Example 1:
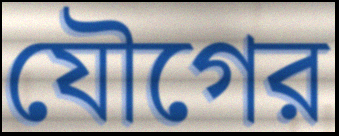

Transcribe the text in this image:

যৌগের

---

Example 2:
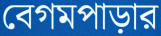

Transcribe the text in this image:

বেগমপাড়ার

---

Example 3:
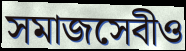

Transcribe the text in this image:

সমাজসেবীও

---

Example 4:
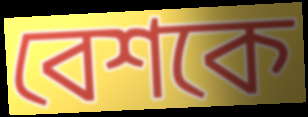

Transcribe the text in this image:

বেশকে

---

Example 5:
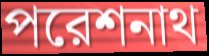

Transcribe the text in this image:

পরেশনাথ